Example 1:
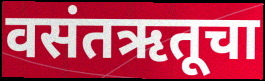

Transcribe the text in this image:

वसंतऋतूचा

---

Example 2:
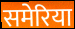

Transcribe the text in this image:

समेरिया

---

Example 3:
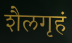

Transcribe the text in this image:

शैलगृहं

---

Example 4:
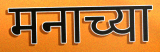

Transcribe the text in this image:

मनाच्‍या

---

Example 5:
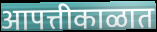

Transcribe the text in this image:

आपत्तीकाळात